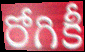
రోగికీ